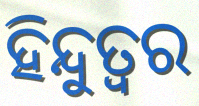
ହିନ୍ଦୁତ୍ବର